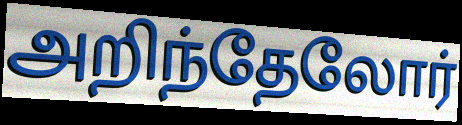
அறிந்தேலோர்